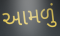
આમળું